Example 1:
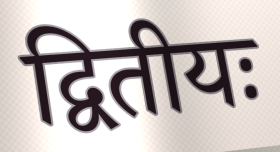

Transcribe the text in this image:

द्वितीयः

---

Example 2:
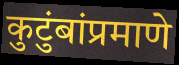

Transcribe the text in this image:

कुटुंबांप्रमाणे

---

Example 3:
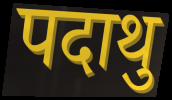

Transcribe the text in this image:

पदाथु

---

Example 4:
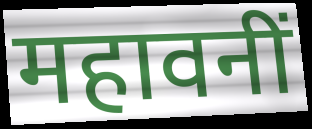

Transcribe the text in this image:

महावनीं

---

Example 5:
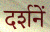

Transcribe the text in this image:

दर्शनें